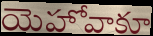
యెహోవాకూ